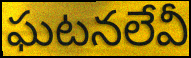
ఘటనలేవీ